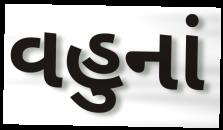
વહુનાં